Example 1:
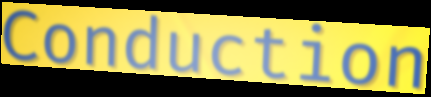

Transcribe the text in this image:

Conduction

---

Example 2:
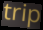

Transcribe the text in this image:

trip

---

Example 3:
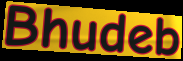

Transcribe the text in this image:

Bhudeb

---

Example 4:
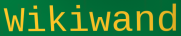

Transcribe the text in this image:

Wikiwand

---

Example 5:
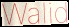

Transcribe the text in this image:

Walid